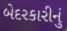
બેદરકારીનું